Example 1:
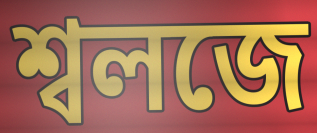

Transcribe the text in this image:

শ্বলজে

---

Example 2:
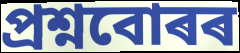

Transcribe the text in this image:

প্ৰশ্নবোৰৰ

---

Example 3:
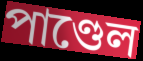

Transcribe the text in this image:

পাণ্ডেল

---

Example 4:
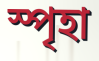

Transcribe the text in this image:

স্পৃহা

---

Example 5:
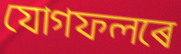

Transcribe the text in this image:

যোগফলৰে